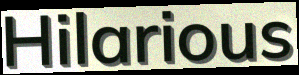
Hilarious